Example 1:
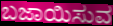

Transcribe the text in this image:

ಬಜಾಯಿಸುವ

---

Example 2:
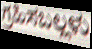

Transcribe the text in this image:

ಗ್ರಹಿಸಬಲ್ಲಳು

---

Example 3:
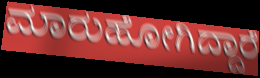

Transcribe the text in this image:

ಮಾರುಹೋಗಿದ್ದಾರೆ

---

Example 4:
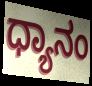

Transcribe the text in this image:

ಧ್ಯಾನಂ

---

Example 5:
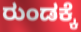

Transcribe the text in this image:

ರುಂಡಕ್ಕೆ